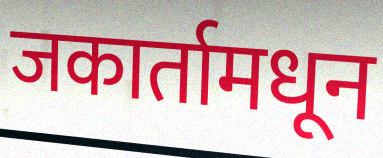
जकार्तामधून